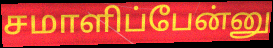
சமாளிப்பேன்னு